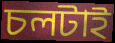
চলটাই